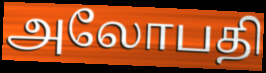
அலோபதி